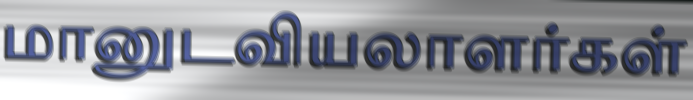
மானுடவியலாளர்கள்